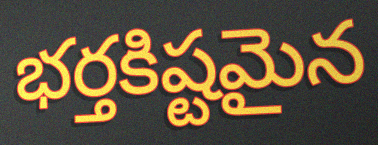
భర్తకిష్టమైన